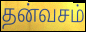
தன்வசம்